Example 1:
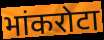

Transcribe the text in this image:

भांकरोटा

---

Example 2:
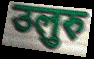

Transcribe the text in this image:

उलुरु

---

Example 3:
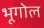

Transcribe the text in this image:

भूगोल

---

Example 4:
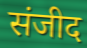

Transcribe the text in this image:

संजीद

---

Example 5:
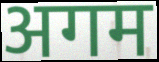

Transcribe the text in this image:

अगम